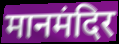
मानमंदिर